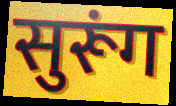
सुरूंग